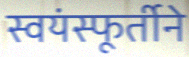
स्वयंस्फूर्तीने